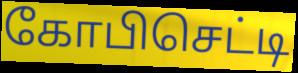
கோபிசெட்டி